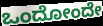
ಒಂದೋಂದೇ